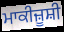
ਮਾਕੀਜ਼ੂਸ਼ੀ